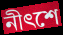
নীৎশে